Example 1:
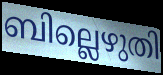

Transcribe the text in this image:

ബില്ലെഴുതി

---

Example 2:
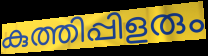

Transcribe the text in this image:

കുത്തിപ്പിളരും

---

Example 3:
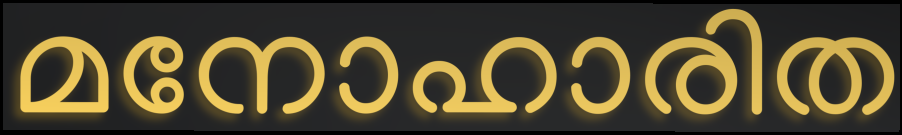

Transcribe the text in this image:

മനോഹാരിത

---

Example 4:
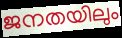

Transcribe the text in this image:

ജനതയിലും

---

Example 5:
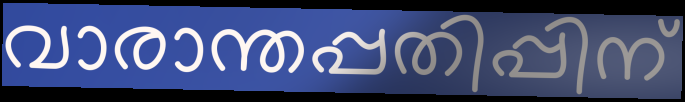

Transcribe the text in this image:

വാരാന്തപ്പതിപ്പിന്